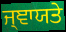
ਜ੍ਞਾਯਤੇ